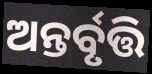
ଅନ୍ତର୍ବୃତ୍ତି